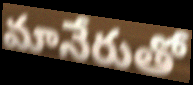
మానేరుతో